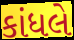
કાંધલે